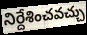
నిర్దేశించవచ్చు